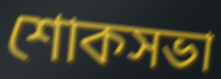
শোকসভা